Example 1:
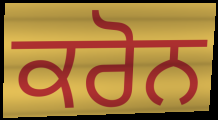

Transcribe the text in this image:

ਕਰੋਨ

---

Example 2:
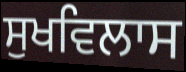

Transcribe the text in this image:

ਸੁਖਵਿਲਾਸ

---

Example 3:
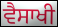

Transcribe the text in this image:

ਵੈਸਾਖੀ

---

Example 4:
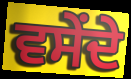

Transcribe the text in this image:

ਵਸੇਂਦੇ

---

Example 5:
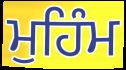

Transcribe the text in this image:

ਮੁਹਿੰਮ